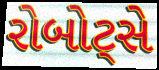
રોબોટ્સે